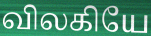
விலகியே